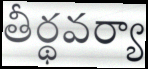
తీర్థవర్యా